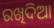
ରଖିଦିଆ